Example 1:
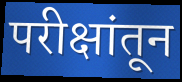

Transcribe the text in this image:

परीक्षांतून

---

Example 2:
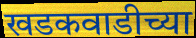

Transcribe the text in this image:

खडकवाडीच्या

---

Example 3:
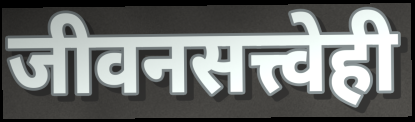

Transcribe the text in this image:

जीवनसत्त्वेही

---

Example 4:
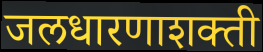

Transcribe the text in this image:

जलधारणाशक्ती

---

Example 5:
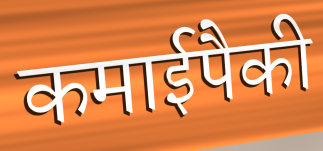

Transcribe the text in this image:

कमाईपैकी